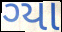
ગ્યા